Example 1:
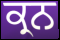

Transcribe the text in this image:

ਕ੍ਰਨ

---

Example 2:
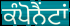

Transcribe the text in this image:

ਕੰਪੋਨੈਂਟਾਂ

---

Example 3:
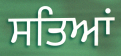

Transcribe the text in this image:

ਸਤਿਆਂ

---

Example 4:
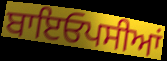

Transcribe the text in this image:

ਬਾਇਓਪਸੀਆਂ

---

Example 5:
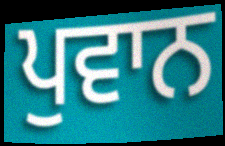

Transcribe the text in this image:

ਪੁਵਾਨ